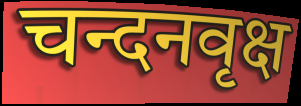
चन्दनवृक्ष